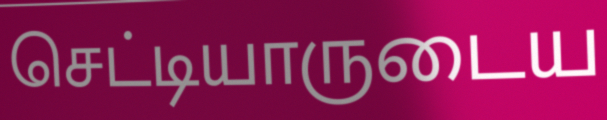
செட்டியாருடைய